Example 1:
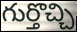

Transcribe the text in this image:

గుర్తొచ్చి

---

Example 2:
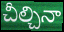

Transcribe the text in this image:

చీల్చినా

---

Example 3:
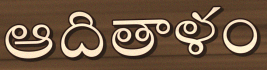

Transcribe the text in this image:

ఆదితాళం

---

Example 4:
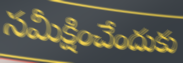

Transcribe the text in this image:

సమీక్షించేందుకు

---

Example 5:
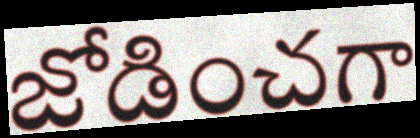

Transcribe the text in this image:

జోడించగా